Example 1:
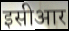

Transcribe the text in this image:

इसीआर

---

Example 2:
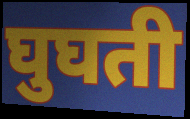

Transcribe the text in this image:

घुघती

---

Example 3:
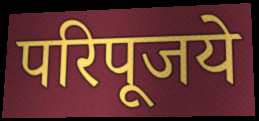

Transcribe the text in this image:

परिपूजये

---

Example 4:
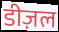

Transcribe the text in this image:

डीज़ल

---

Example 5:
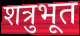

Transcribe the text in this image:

शत्रुभूत